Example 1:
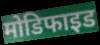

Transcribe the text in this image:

मोडिफाइड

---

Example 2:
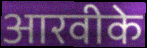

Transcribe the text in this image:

आरवीके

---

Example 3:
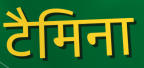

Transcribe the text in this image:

टैमिना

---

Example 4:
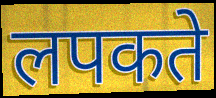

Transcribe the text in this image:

लपकते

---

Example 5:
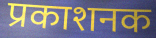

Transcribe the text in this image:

प्रकाशनक